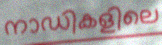
നാഡികളിലെ